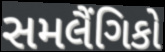
સમલૈંગિકો